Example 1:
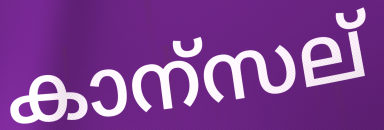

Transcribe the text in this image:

കാന്സല്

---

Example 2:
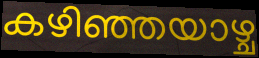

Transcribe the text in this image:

കഴിഞ്ഞയാഴ്ച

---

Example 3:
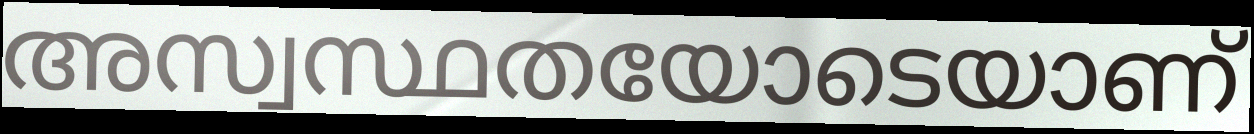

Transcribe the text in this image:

അസ്വസ്ഥതയോടെയാണ്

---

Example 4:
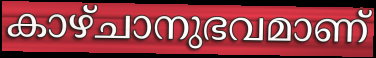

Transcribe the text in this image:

കാഴ്ചാനുഭവമാണ്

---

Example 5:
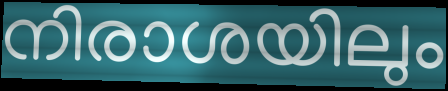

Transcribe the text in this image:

നിരാശയിലും